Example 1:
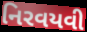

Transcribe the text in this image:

નિરવયવી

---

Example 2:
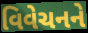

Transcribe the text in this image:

વિવેચનને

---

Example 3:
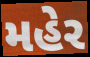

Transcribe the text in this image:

મહેર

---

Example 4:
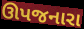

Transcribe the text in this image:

ઊપજનારા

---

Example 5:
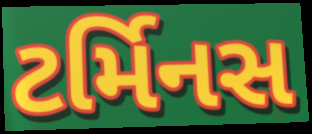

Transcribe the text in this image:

ટર્મિનસ